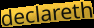
declareth